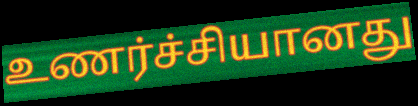
உணர்ச்சியானது